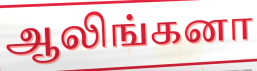
ஆலிங்கனா